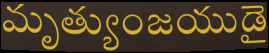
మృత్యుంజయుడై